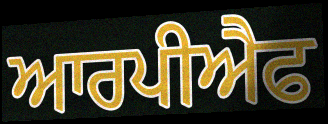
ਆਰਪੀਐਫ